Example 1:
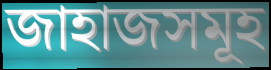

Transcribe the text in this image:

জাহাজসমূহ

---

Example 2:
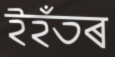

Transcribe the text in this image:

ইহঁতৰ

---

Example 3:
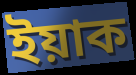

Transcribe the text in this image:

ইয়াক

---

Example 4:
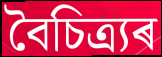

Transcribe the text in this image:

বৈচিত্ৰ্যৰ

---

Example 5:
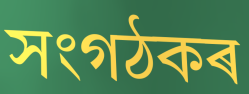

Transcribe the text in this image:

সংগঠকৰ